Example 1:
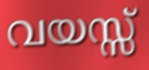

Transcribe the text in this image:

വയസ്സ്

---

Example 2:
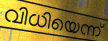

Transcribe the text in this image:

വിധിയെന്ന്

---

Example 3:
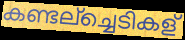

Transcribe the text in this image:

കണ്ടല്ച്ചെടികള്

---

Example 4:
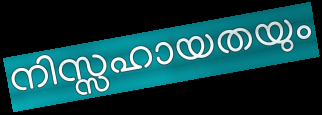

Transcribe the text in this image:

നിസ്സഹായതയും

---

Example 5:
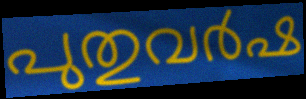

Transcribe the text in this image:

പുതുവർഷ